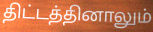
திட்டத்தினாலும்